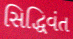
સિદ્ધિવંત